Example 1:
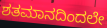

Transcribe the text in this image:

ಶತಮಾನದಿಂದಲೇ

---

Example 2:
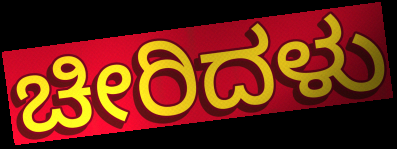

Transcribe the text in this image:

ಚೀರಿದಳು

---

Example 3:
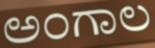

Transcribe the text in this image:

ಅಂಗಾಲ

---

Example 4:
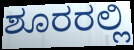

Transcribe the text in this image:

ಶೂರರಲ್ಲಿ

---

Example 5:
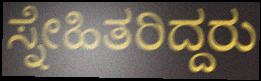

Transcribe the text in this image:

ಸ್ನೇಹಿತರಿದ್ದರು